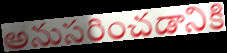
అనుసరించడానికి